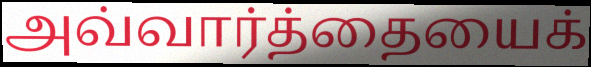
அவ்வார்த்தையைக்